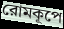
রোমকূপে